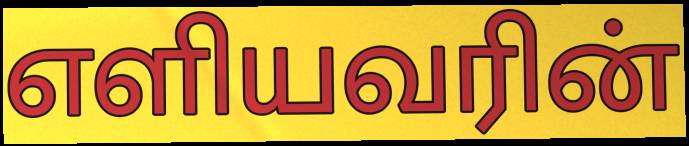
எளியவரின்